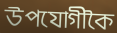
উপযোগীকৈ